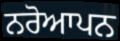
ਨਰੋਆਪਨ